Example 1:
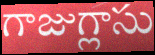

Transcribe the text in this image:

గాజుగ్లాసు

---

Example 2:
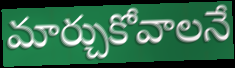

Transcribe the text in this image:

మార్చుకోవాలనే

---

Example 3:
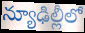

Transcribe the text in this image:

న్యూఢిల్లీలో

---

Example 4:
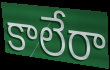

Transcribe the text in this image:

కాలేరా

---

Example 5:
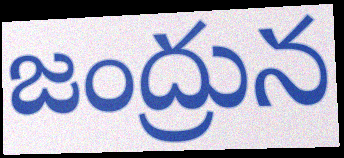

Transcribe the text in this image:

జంద్రున